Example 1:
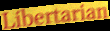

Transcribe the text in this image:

Libertarian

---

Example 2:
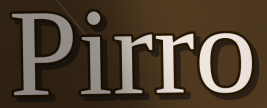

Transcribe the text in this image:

Pirro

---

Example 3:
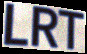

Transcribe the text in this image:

LRT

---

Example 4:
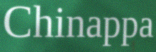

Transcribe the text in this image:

Chinappa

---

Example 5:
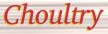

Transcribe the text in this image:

Choultry